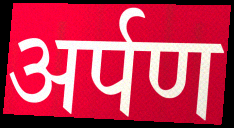
अर्पण